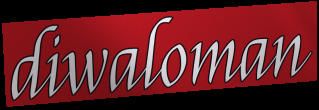
diwaloman